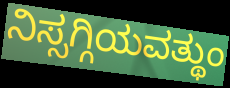
ನಿಸ್ಸಗ್ಗಿಯವತ್ಥುಂ